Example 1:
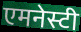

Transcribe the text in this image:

एमनेस्टी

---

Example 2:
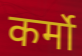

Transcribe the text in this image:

कर्मो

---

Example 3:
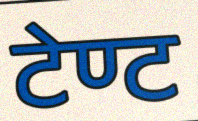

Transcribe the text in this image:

टेण्ट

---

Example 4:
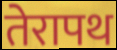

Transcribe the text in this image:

तेरापथ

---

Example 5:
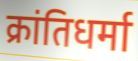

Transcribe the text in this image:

क्रांतिधर्मा